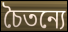
চৈতন্যে